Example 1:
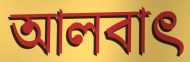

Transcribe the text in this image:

আলবাৎ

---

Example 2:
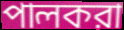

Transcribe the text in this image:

পালকরা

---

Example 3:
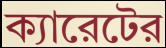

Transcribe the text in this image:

ক্যারেটের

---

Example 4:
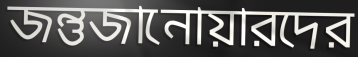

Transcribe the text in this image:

জন্তুজানোয়ারদের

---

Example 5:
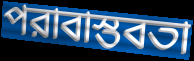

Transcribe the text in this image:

পরাবাস্তবতা